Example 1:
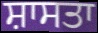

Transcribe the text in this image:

ਸ਼ਾਸਤਾ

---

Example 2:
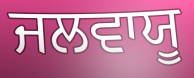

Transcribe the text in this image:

ਜਲਵਾਯੂ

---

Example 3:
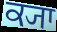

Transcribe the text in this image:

ਕ੍ਯਾ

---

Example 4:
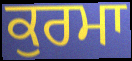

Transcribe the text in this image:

ਕੁਰਮਾ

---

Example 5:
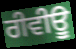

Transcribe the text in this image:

ਰੀਵੀਊ